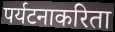
पर्यटनाकरिता